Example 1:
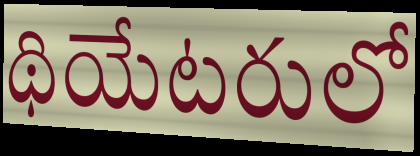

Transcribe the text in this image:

థియేటరులో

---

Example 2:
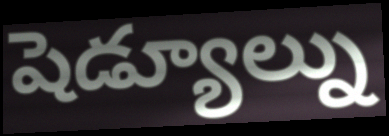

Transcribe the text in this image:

షెడ్యూల్ను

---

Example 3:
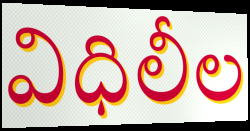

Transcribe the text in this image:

విధిలీల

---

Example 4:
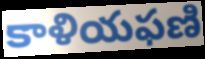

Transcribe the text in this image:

కాళియఫణి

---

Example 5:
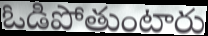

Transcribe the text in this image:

ఓడిపోతుంటారు